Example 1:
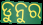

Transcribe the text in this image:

ଡୁନୁର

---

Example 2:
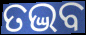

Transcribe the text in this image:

ତଦ୍ଭବ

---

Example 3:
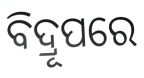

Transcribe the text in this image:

ବିଦ୍ରୂପରେ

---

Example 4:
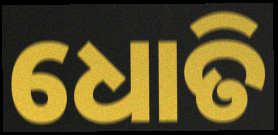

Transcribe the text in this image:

ଧୋତି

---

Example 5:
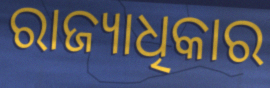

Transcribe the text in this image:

ରାଜ୍ୟାଧିକାର